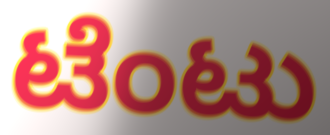
ಟೆಂಟು